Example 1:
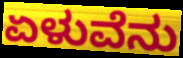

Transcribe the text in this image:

ಏಳುವೆನು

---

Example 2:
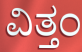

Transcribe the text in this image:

ವಿತ್ತಂ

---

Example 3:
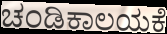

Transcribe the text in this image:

ಚಂಡಿಕಾಲಯಕೆ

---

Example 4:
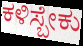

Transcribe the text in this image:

ಕಳಿಸ್ಬೇಕು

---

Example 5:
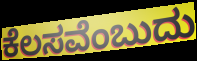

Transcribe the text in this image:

ಕೆಲಸವೆಂಬುದು